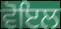
ਵੋਇਲ